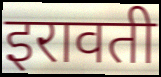
इरावती